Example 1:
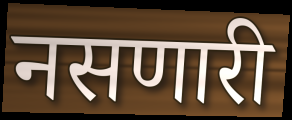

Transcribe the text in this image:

नसणारी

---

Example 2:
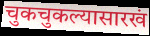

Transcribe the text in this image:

चुकचुकल्यासारखं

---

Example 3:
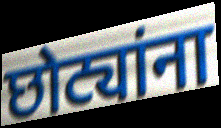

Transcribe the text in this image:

छोट्यांना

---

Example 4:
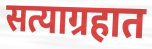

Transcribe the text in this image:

सत्याग्रहात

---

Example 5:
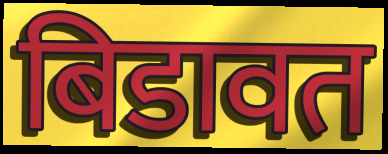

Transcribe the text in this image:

बिडावत